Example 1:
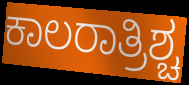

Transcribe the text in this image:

ಕಾಲರಾತ್ರಿಶ್ಚ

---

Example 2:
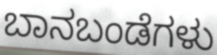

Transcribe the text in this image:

ಬಾನಬಂಡೆಗಳು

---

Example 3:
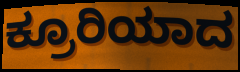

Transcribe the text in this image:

ಕ್ರೂರಿಯಾದ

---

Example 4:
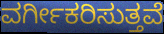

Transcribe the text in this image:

ವರ್ಗೀಕರಿಸುತ್ತವೆ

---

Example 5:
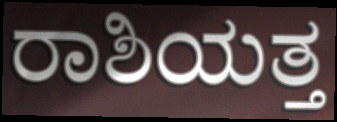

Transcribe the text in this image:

ರಾಶಿಯತ್ತ